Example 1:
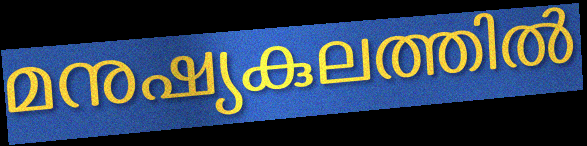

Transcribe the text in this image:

മനുഷ്യകുലത്തിൽ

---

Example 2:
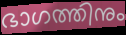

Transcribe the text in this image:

ഭാഗത്തിനും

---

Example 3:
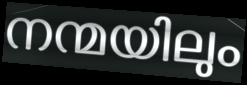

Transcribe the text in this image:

നന്മയിലും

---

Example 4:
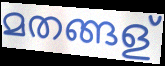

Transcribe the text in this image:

മതങ്ങള്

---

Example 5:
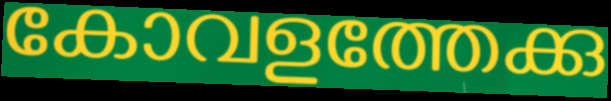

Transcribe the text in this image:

കോവളത്തേക്കു